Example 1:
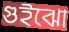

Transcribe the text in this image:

গুইঝো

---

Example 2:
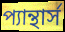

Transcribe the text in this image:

প্যান্থার্স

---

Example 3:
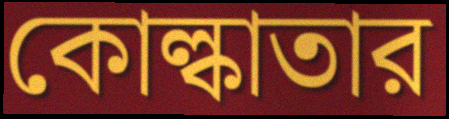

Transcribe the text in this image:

কোল্কাতার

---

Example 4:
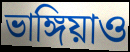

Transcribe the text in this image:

ভাঙ্গিয়াও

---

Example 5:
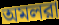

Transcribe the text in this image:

অমলরা